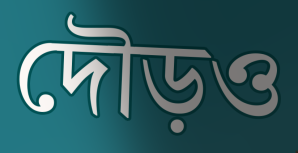
দৌড়ও